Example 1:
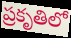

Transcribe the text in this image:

ప్రకృతిలో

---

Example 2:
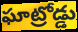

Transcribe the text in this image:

ఘాట్రోడ్డు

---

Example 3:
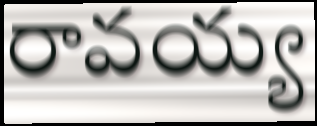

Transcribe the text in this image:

రావయ్య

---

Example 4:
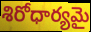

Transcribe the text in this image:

శిరోధార్యమై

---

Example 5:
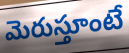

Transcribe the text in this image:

మెరుస్తూంటే